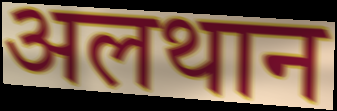
अलथान